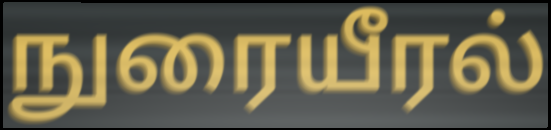
நுரையீரல்